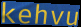
kehvu